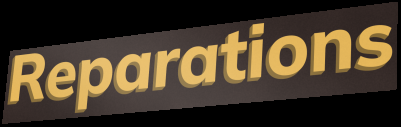
Reparations